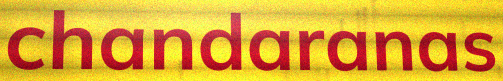
chandaranas